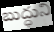
బుద్ధుని